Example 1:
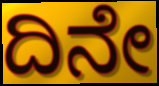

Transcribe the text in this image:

ದಿನೇ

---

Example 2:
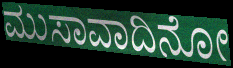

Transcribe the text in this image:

ಮುಸಾವಾದಿನೋ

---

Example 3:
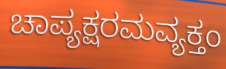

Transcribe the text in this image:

ಚಾಪ್ಯಕ್ಷರಮವ್ಯಕ್ತಂ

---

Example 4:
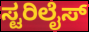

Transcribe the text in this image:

ಸ್ಟರಿಲೈಸ್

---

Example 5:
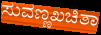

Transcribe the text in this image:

ಸುವಣ್ಣಖಚಿತಾ